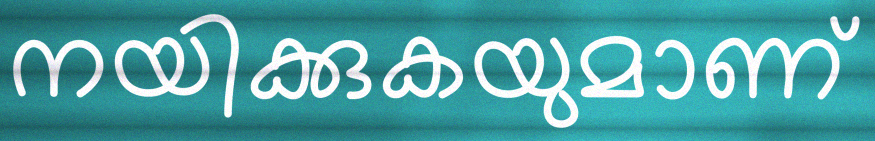
നയിക്കുകയുമാണ്